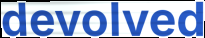
devolved